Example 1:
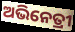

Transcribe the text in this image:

ଅଭିନେତ୍ରୀ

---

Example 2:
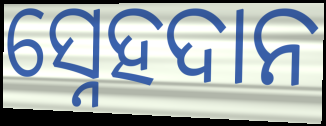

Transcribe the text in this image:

ସ୍ନେହଦାନ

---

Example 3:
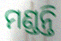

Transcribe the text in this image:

ମଣ୍ଡନ୍ତି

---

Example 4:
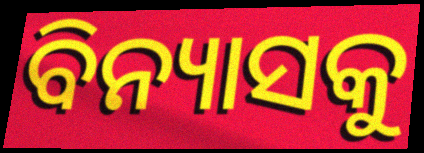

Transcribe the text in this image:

ବିନ୍ୟାସକୁ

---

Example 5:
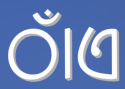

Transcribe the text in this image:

ଠାଁଏ